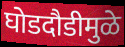
घोडदौडीमुळे